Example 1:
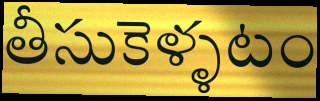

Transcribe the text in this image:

తీసుకెళ్ళటం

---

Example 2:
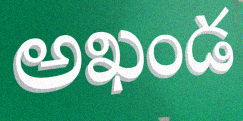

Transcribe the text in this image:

అఖండ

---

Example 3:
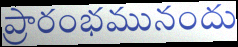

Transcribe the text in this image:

ప్రారంభమునందు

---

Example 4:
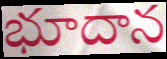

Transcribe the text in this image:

భూదాన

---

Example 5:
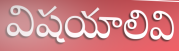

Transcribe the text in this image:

విషయాలివి